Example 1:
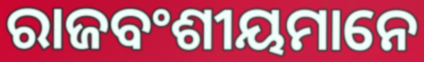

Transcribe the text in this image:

ରାଜବଂଶୀୟମାନେ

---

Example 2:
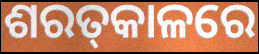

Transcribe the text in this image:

ଶରତ୍‌କାଳରେ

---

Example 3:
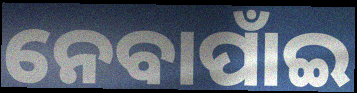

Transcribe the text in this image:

ନେବାପାଁଇ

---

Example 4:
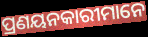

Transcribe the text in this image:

ପ୍ରଣୟନକାରୀମାନେ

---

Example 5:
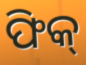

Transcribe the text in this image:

ଫିକ୍